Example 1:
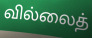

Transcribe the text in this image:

வில்லைத்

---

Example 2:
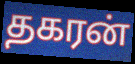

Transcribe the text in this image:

தகரன்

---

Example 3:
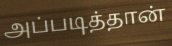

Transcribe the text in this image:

அப்படித்தான்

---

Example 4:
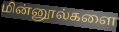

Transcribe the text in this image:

மின்னூல்களை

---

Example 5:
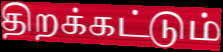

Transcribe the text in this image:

திறக்கட்டும்